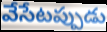
వేసేటప్పుడు